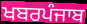
ਖਬਰਪੰਜਾਬ